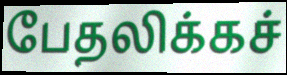
பேதலிக்கச்